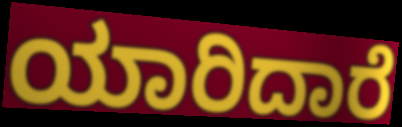
ಯಾರಿದಾರೆ